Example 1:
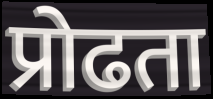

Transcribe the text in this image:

प्रोढता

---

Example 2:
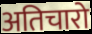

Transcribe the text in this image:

अतिचारो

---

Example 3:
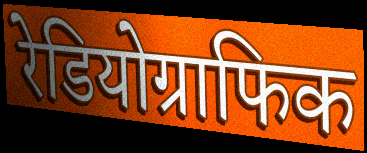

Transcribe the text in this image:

रेडियोग्राफिक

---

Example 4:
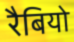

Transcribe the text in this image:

रैबियो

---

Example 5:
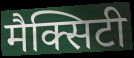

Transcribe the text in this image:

मैक्सिटी